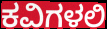
ಕವಿಗಳಲಿ